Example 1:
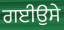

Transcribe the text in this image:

ਗਈਉਸੇ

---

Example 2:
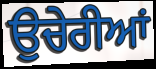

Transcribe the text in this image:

ਉਚੇਰੀਆਂ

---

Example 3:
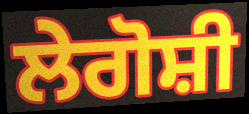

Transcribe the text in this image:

ਲੇਗੋਸ਼ੀ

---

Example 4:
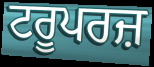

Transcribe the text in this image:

ਟਰੂਪਰਜ਼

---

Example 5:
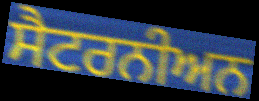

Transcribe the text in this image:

ਸੈਟਰਨੀਅਨ